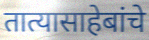
तात्यासाहेबांचे